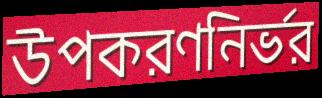
উপকরণনির্ভর